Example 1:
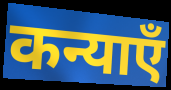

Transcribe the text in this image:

कन्याएँ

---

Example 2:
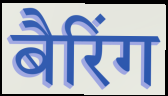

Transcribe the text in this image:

बैरिंग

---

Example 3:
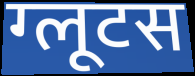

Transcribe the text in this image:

ग्लूटस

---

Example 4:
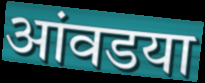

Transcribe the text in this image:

आंवडया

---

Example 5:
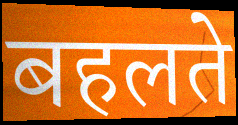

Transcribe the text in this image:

बहलते